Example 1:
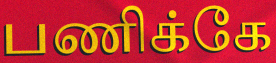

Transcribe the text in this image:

பணிக்கே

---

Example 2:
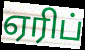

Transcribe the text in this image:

ஏரிப்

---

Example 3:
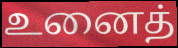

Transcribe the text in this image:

உனைத்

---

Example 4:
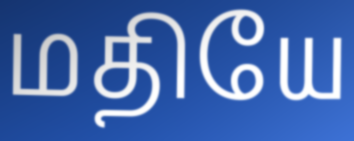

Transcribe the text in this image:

மதியே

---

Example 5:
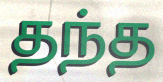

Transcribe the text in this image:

தந்த